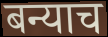
बन्याच